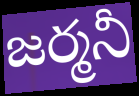
జర్మనీ